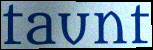
taunt